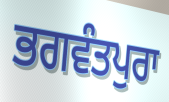
ਭਗਵੰਤਪੁਰਾ